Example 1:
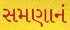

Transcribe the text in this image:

સમણાનં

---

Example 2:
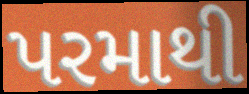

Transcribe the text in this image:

પરમાથી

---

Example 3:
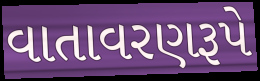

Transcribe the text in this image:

વાતાવરણરૂપે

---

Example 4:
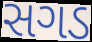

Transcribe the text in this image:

સગડ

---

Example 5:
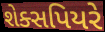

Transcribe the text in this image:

શેક્સપિયરે